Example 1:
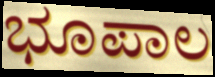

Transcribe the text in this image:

ಭೂಪಾಲ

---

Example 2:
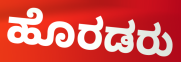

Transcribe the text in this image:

ಹೊರಡರು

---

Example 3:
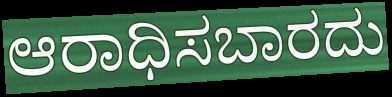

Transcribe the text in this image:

ಆರಾಧಿಸಬಾರದು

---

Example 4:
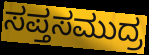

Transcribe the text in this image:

ಸಪ್ತಸಮುದ್ರ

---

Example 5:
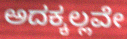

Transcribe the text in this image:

ಅದಕ್ಕಲ್ಲವೇ